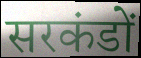
सरकंडों